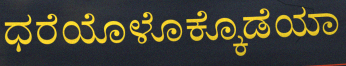
ಧರೆಯೊಳೊಕ್ಕೊಡೆಯಾ